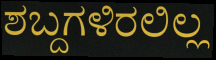
ಶಬ್ದಗಳಿರಲಿಲ್ಲ